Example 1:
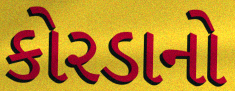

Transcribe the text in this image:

કોરડાનો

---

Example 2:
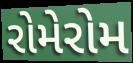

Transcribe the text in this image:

રોમેરોમ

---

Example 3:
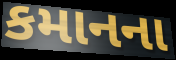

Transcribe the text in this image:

કમાનના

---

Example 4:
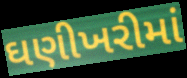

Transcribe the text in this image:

ઘણીખરીમાં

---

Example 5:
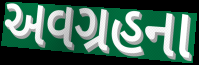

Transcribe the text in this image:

અવગ્રહના